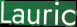
Lauric